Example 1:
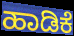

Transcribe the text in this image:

ಹಾಡಿಕೆ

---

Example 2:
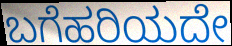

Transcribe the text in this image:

ಬಗೆಹರಿಯದೇ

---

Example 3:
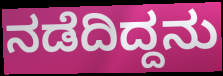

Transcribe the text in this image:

ನಡೆದಿದ್ದನು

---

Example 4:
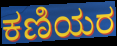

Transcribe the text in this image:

ಕಣಿಯರ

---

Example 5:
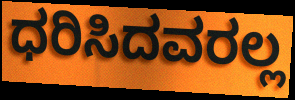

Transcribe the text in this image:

ಧರಿಸಿದವರಲ್ಲ